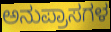
ಅನುಪ್ರಾಸಗಳ